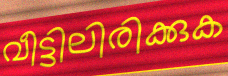
വീട്ടിലിരിക്കുക